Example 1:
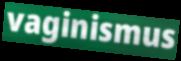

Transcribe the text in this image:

vaginismus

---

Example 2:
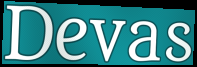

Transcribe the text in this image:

Devas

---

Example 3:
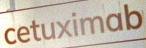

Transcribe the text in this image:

cetuximab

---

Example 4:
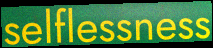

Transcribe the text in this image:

selflessness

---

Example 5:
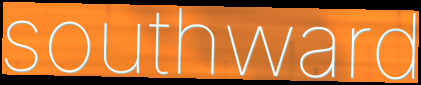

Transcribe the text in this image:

southward